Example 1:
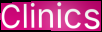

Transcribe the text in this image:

Clinics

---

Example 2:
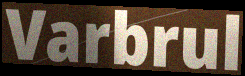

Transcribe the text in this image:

Varbrul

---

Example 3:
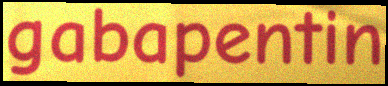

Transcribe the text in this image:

gabapentin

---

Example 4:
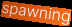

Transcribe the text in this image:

spawning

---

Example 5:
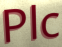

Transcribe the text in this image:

Plc